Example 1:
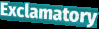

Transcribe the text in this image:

Exclamatory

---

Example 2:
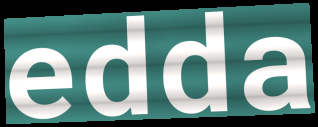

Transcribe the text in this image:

edda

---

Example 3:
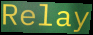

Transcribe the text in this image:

Relay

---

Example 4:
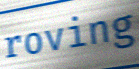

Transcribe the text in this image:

roving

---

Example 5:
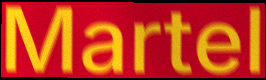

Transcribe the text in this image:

Martel